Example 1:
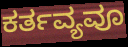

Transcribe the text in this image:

ಕರ್ತವ್ಯವೂ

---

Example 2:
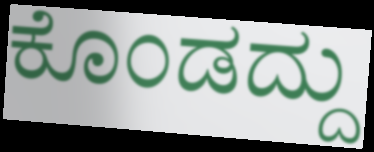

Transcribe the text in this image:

ಕೊಂಡದ್ದು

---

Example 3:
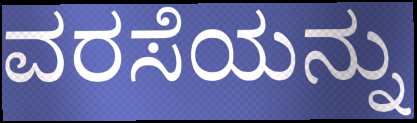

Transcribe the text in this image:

ವರಸೆಯನ್ನು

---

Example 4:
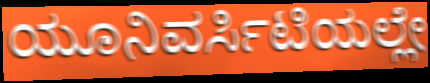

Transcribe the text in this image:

ಯೂನಿವರ್ಸಿಟಿಯಲ್ಲೇ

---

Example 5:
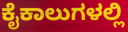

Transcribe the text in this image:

ಕೈಕಾಲುಗಳಲ್ಲಿ